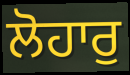
ਲੋਹਾਰੁ